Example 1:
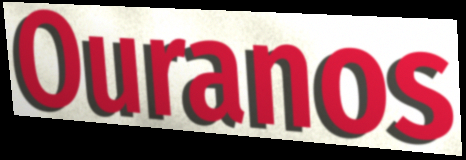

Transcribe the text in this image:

Ouranos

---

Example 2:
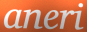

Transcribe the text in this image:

aneri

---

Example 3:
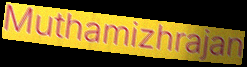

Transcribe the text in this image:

Muthamizhrajan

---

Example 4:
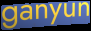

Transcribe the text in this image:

ganyun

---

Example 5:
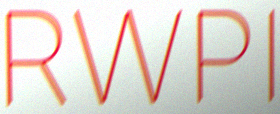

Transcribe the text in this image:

RWPI